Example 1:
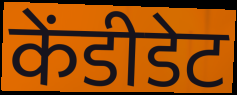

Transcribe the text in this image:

केंडीडेट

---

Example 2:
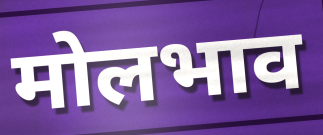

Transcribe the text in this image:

मोलभाव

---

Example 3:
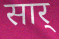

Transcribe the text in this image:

सार्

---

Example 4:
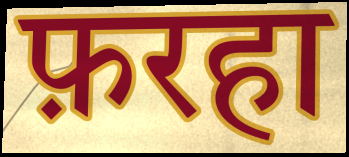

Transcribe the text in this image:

फ़रहा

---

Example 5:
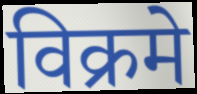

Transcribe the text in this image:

विक्रमे